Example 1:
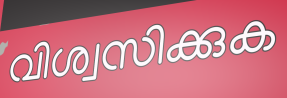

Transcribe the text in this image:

വിശ്വസിക്കുക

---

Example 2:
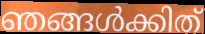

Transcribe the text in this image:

ഞങ്ങൾക്കിത്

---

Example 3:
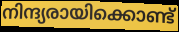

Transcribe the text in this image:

നിന്ദ്യരായിക്കൊണ്ട്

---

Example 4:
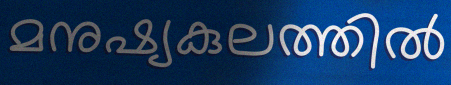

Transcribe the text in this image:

മനുഷ്യകുലത്തിൽ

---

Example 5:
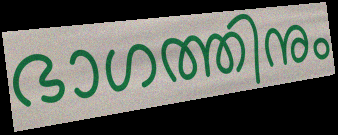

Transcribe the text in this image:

ഭാഗത്തിനും